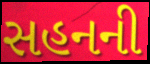
સહનની